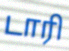
டாரி